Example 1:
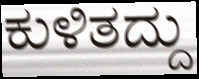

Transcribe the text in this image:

ಕುಳಿತದ್ದು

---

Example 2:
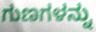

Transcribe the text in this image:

ಗುಣಗಳನ್ನು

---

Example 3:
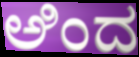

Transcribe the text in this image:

ಅಿಂದ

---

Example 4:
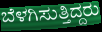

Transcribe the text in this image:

ಬೆಳಗಿಸುತ್ತಿದ್ದರು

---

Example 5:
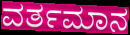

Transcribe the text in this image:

ವರ್ತಮಾನ